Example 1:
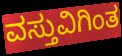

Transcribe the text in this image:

ವಸ್ತುವಿಗಿಂತ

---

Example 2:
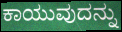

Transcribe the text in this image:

ಕಾಯುವುದನ್ನು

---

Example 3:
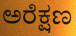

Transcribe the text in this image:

ಅರೆಕ್ಷಣ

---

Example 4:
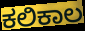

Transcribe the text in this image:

ಕಲಿಕಾಲ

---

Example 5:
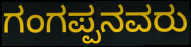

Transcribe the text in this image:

ಗಂಗಪ್ಪನವರು